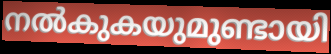
നൽകുകയുമുണ്ടായി